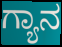
ಗ್ಯಾನ